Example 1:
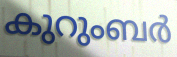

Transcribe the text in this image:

കുറുംബർ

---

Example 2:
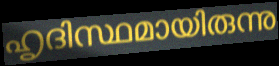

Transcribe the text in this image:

ഹൃദിസ്ഥമായിരുന്നു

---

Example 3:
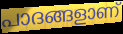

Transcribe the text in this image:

പാദങ്ങളാണ്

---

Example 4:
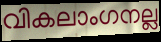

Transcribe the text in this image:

വികലാംഗനല്ല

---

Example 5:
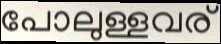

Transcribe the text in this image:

പോലുള്ളവര്